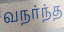
வநர்ந்த